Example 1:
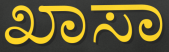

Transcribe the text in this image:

ಖಾಸಾ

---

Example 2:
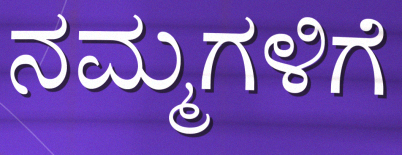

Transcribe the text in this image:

ನಮ್ಮಗಳಿಗೆ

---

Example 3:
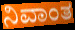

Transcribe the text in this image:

ನಿವಾಂತ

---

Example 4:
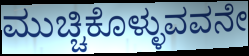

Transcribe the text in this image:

ಮುಚ್ಚಿಕೊಳ್ಳುವವನೇ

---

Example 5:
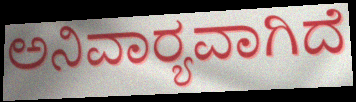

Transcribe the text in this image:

ಅನಿವಾರ‍್ಯವಾಗಿದೆ